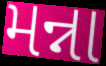
મન્ના